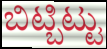
ಬಿಟ್ಬಿಟ್ಟು